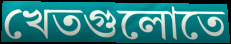
খেতগুলোতে